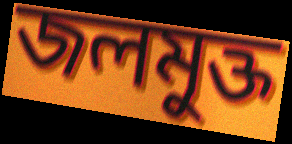
জলমুক্ত